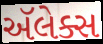
ઍલેક્સ